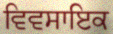
ਵਿਵਸਾਇਕ